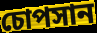
চোপসান